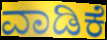
ವಾಡಿಕೆ